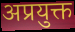
अप्रयुक्त